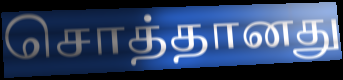
சொத்தானது